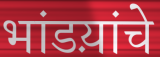
भांडय़ांचे